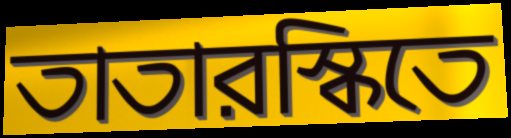
তাতারস্কিতে